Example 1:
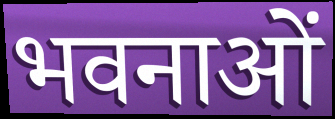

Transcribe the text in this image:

भवनाओं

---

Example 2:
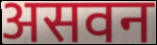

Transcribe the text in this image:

असवन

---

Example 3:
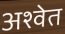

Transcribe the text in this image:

अश्वेत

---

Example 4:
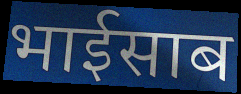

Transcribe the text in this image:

भाईसाब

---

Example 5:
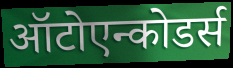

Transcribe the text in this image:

ऑटोएन्कोडर्स